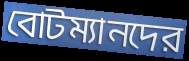
বোটম্যানদের